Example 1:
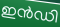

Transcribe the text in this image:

ഇൻഡി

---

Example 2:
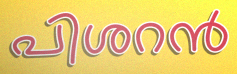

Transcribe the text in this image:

പിശറൻ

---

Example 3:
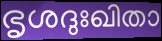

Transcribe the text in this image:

ഭൃശദുഃഖിതാ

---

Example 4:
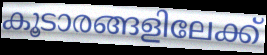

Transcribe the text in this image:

കൂടാരങ്ങളിലേക്ക്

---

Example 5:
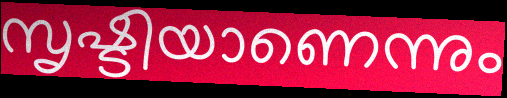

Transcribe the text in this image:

സൃഷ്ടിയാണെന്നും